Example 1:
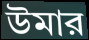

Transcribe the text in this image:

উমার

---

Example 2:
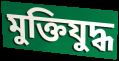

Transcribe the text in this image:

মুক্তিযুদ্ধ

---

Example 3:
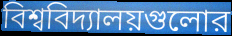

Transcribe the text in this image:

বিশ্ববিদ্যালয়গুলোর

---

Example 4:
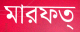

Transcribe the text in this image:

মারফত্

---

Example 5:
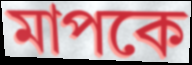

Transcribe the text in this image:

মাপকে